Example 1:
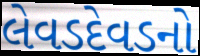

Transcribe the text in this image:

લેવડદેવડનો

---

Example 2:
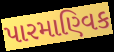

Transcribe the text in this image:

પારમાણ્વિક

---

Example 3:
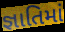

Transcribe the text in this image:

જ્ઞાતિમાં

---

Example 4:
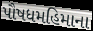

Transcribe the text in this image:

પૌષધમહિમાના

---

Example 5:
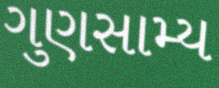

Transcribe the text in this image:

ગુણસામ્ય